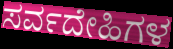
ಸರ್ವದೇಹಿಗಳ